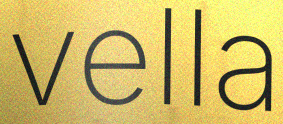
vella